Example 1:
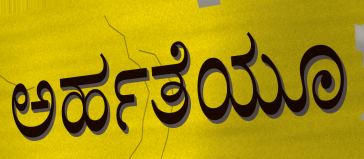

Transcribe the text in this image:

ಅರ್ಹತೆಯೂ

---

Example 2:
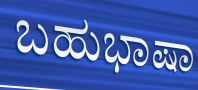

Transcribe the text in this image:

ಬಹುಭಾಷಾ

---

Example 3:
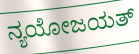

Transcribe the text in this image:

ನ್ಯಯೋಜಯತ್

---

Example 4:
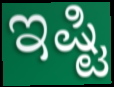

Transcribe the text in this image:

ಇಷ್ಟಿ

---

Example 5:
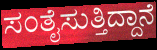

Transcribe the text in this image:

ಸಂತೈಸುತ್ತಿದ್ದಾನೆ